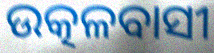
ଉତ୍କଳବାସୀ